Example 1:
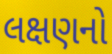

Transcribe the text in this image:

લક્ષણનો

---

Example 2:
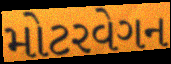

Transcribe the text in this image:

મોટરવેગન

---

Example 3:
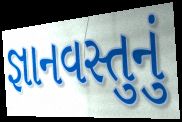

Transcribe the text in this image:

જ્ઞાનવસ્તુનું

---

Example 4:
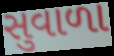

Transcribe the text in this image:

સુવાળા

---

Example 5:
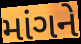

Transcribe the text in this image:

માંગને